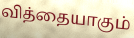
வித்தையாகும்